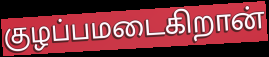
குழப்பமடைகிறான்